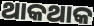
ଥାକଥାକ